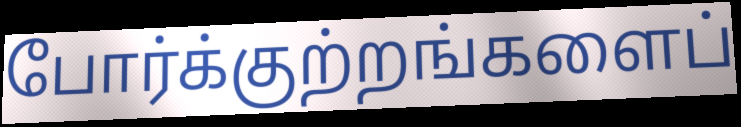
போர்க்குற்றங்களைப்